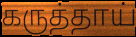
கருத்தாய்